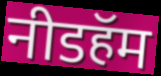
नीडहॅम